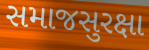
સમાજસુરક્ષા